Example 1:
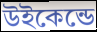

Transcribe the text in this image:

উইকেন্ডে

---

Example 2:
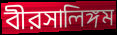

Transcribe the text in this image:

বীরসালিঙ্গম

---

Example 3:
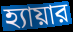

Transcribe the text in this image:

হ্যায়ার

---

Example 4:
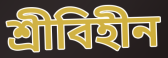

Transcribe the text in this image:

শ্রীবিহীন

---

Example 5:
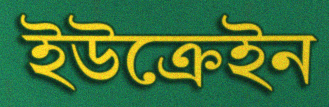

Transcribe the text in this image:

ইউক্রেইন